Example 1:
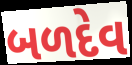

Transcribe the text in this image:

બળદેવ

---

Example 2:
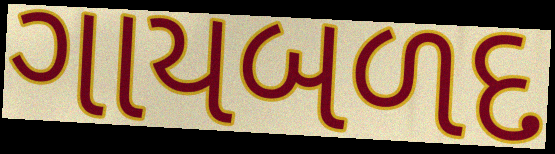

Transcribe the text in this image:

ગાયબળદ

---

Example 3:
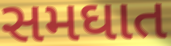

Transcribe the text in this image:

સમઘાત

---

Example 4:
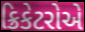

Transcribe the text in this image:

ક્રિકેટરોએ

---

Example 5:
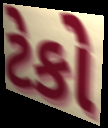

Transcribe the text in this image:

ટેકો